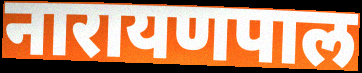
नारायणपाल